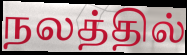
நலத்தில்